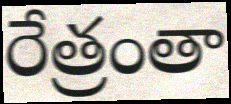
రేత్రంతా